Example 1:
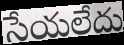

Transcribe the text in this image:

సేయలేదు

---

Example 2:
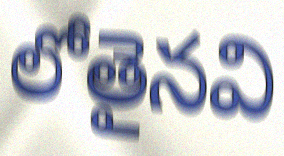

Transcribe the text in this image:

లోతైనవి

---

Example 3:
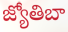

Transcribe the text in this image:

జ్యోతిబా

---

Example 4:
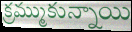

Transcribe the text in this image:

క్రమ్ముకున్నాయి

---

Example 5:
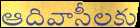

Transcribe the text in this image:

ఆదివాసీలకు